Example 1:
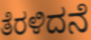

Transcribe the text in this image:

ತೆರಳಿದನೆ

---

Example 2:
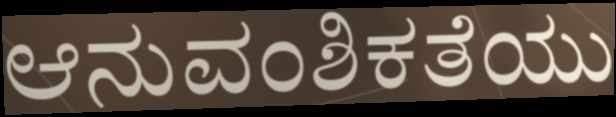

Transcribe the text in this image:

ಆನುವಂಶಿಕತೆಯು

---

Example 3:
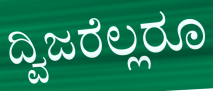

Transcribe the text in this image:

ದ್ವಿಜರೆಲ್ಲರೂ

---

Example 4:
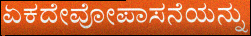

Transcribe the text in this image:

ಏಕದೇವೋಪಾಸನೆಯನ್ನು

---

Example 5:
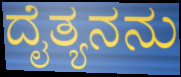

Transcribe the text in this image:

ದೈತ್ಯನನು